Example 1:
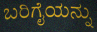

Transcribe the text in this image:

ಬರಿಗೈಯನ್ನು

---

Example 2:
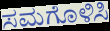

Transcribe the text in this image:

ಸಮಗೊಳಿಸಿ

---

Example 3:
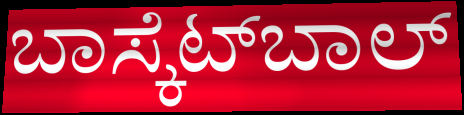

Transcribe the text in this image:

ಬಾಸ್ಕೆಟ್‍ಬಾಲ್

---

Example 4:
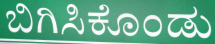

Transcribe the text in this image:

ಬಿಗಿಸಿಕೊಂಡು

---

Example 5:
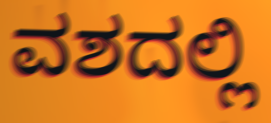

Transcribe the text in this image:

ವಶದಲ್ಲಿ